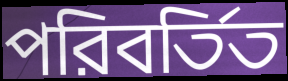
পরিবর্তিত